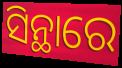
ସିନ୍ଥାରେ